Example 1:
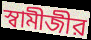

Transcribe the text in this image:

স্বামীজীর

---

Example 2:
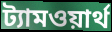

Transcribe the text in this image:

ট্যামওয়ার্থ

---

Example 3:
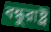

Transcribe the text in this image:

বন্ধুরাষ্ট্র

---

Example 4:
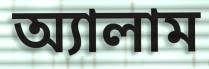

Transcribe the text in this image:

অ্যালাম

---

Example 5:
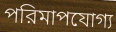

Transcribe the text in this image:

পরিমাপযোগ্য